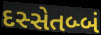
દસ્સેતબ્બં